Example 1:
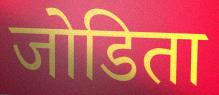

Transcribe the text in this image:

जोडिता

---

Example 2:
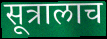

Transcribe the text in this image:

सूत्रालाच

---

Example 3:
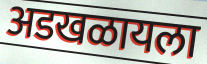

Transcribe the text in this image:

अडखळायला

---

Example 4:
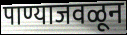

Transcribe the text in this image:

पाण्याजवळून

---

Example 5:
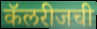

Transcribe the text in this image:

कॅलरीजची